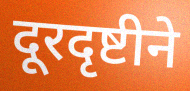
दूरदृष्टीने